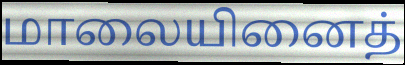
மாலையினைத்